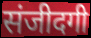
संजीदगी